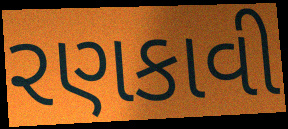
રણકાવી